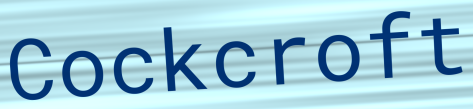
Cockcroft